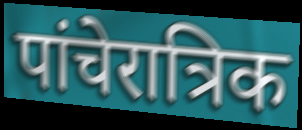
पांचेरात्रिक